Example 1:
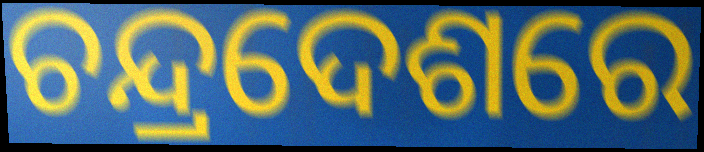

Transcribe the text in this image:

ଚନ୍ଦ୍ରଦେଶରେ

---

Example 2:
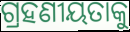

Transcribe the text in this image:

ଗ୍ରହଣୀୟତାକୁ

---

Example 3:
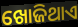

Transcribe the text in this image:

ଖୋଜିଥାଏ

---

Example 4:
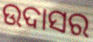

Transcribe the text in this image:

ଉଦାସର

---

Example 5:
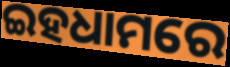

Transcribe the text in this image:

ଇହଧାମରେ